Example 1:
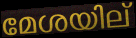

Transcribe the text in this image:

മേശയില്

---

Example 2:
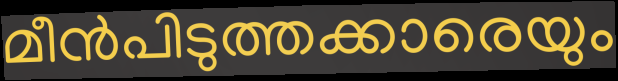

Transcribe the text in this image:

മീൻപിടുത്തക്കാരെയും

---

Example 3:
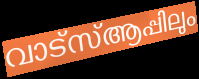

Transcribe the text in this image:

വാട്സ്ആപ്പിലും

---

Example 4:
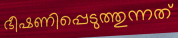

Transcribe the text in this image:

ഭീഷണിപ്പെടുത്തുന്നത്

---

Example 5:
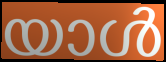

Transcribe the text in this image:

യാൾ